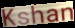
Kshan